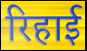
रिहाई